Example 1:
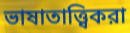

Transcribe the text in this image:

ভাষাতাত্ত্বিকরা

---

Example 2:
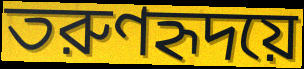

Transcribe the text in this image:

তরুণহৃদয়ে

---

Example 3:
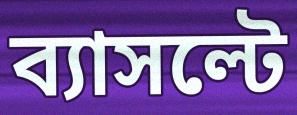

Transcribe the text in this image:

ব্যাসল্টে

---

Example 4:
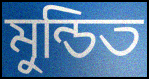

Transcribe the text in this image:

মুন্ডিত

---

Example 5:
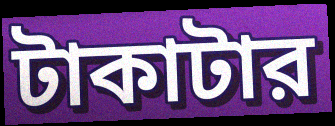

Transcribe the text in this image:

টাকাটার